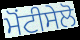
ਮੋਂਟੀਸੇਲੋ